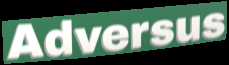
Adversus